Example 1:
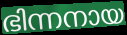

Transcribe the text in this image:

ഭിന്നനായ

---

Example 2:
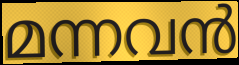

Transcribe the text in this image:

മന്നവൻ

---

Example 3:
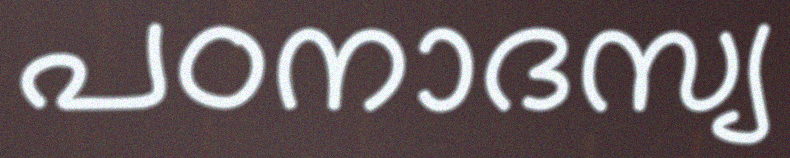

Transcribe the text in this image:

പഠനാദസ്യ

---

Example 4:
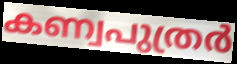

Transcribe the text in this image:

കണ്വപുത്രർ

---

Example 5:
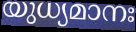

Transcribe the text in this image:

യുധ്യമാനഃ